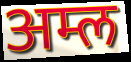
अम्ल